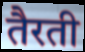
तैरती